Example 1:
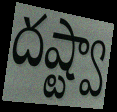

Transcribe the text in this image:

దష్ట్వా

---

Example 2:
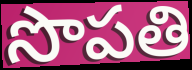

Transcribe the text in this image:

సొపతి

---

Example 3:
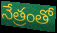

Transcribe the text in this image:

నేత్రంతో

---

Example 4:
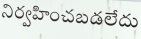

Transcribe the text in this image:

నిర్వహించబడలేదు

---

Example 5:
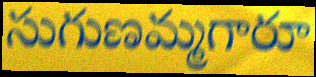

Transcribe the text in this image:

సుగుణమ్మగారూ